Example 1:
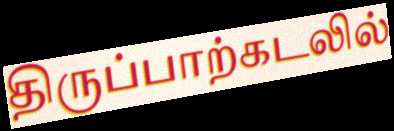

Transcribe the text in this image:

திருப்பாற்கடலில்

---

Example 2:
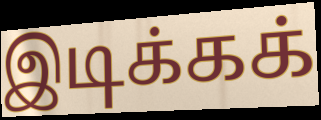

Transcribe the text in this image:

இடிக்கக்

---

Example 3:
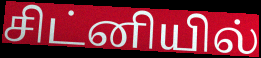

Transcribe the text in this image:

சிட்னியில்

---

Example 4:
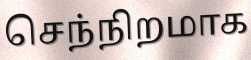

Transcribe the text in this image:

செந்நிறமாக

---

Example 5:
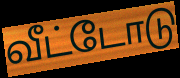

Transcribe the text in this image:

வீட்டோடு